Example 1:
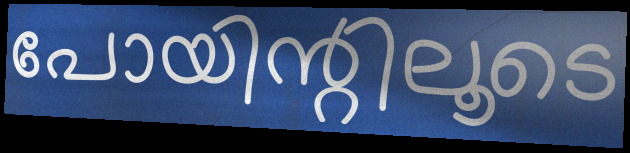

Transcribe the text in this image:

പോയിന്റിലൂടെ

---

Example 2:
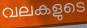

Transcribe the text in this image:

വലകളുടെ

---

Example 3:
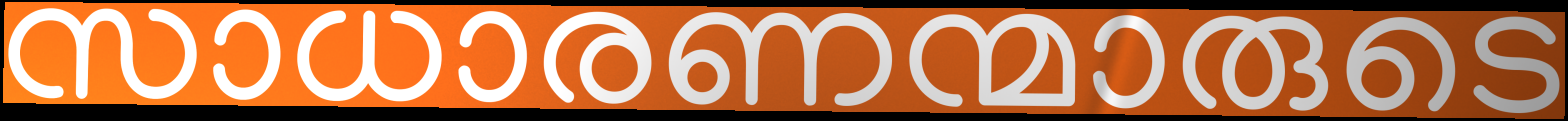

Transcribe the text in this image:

സാധാരണന്മാരുടെ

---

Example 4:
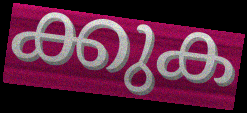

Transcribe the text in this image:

ക്കുക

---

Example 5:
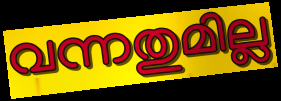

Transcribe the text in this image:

വന്നതുമില്ല